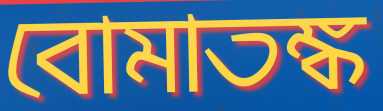
বোমাতঙ্ক